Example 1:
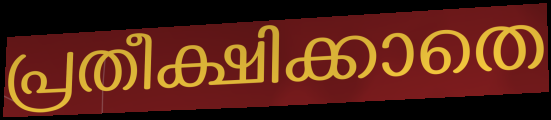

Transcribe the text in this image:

പ്രതീക്ഷിക്കാതെ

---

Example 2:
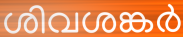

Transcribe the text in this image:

ശിവശങ്കർ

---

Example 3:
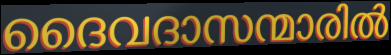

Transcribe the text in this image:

ദൈവദാസന്മാരിൽ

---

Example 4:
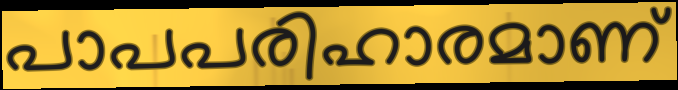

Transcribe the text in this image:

പാപപരിഹാരമാണ്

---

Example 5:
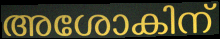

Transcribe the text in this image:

അശോകിന്